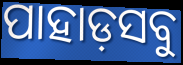
ପାହାଡ଼ସବୁ